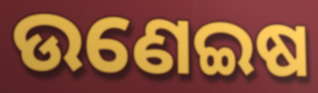
ଉଣେଇଷ